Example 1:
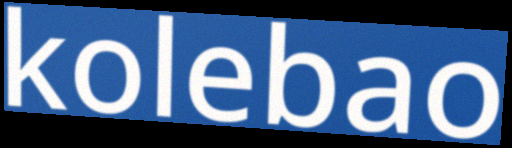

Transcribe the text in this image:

kolebao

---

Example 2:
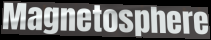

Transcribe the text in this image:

Magnetosphere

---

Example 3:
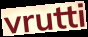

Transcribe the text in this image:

vrutti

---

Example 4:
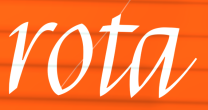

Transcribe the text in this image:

rota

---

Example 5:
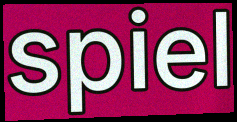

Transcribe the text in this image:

spiel